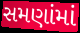
સમણાંમાં